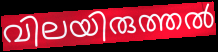
വിലയിരുത്തൽ